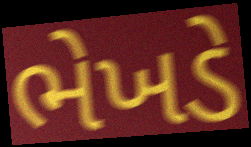
ભેખડે